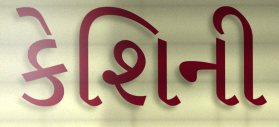
કેશિની